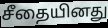
சீதையினது